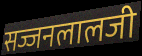
सज्जनलालजी